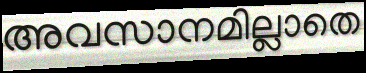
അവസാനമില്ലാതെ